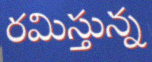
రమిస్తున్న